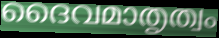
ദൈവമാതൃത്വം